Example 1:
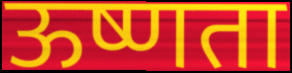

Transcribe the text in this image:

ऊष्णता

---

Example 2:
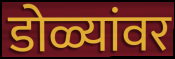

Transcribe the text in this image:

डोळ्यांवर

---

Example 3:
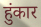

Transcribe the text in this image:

हुंकार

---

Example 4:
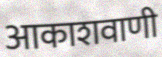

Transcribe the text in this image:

आकाशवाणी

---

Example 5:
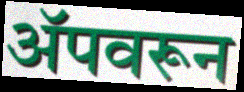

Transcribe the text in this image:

ॲपवरून